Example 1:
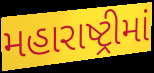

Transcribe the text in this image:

મહારાષ્ટ્રીમાં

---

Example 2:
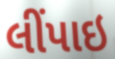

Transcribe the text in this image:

લીંપાઇ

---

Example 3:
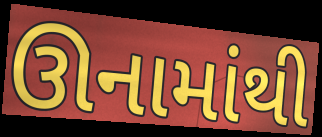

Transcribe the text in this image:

ઊનામાંથી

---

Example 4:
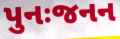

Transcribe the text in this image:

પુનઃજનન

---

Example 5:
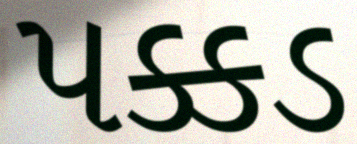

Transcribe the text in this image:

પક્કડ